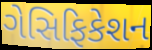
ગેસિફિકેશન